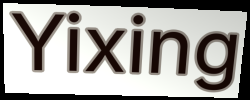
Yixing